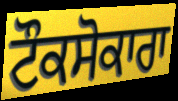
ਟੌਕਸੋਕਾਰਾ